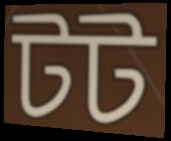
টট